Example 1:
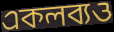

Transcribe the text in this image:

একলব্যও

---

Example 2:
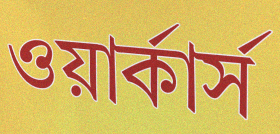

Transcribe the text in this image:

ওয়ার্কার্স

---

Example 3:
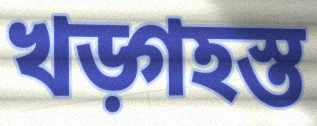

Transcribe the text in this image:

খড়্গহস্ত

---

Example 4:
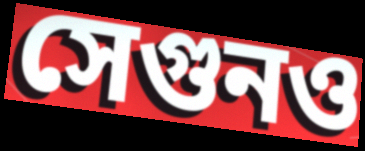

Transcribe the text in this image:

সেগুনও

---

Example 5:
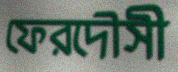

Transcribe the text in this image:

ফেরদৌসী